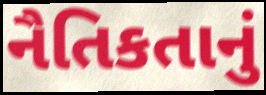
નૈતિકતાનું